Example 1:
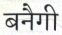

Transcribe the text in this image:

बनैगी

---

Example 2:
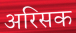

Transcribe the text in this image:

अरिसक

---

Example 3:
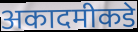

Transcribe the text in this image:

अकादमीकडे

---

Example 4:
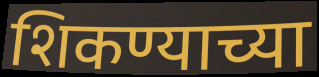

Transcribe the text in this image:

शिकण्याच्या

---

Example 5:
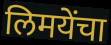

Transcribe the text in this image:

लिमयेंचा